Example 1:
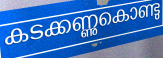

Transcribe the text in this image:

കടക്കണ്ണുകൊണ്ടു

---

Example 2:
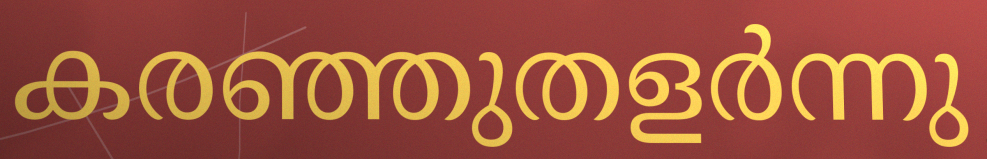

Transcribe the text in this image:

കരഞ്ഞുതളർന്നു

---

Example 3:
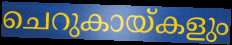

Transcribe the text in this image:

ചെറുകായ്കളും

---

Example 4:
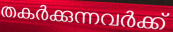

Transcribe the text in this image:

തകർക്കുന്നവർക്ക്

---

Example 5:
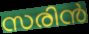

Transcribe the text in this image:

സരിൻ